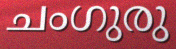
ചംഗുരു